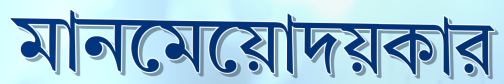
মানমেয়োদয়কার